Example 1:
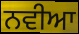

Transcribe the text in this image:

ਨਵੀਆ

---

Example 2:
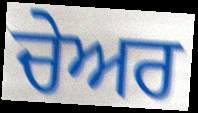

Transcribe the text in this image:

ਚੇਅਰ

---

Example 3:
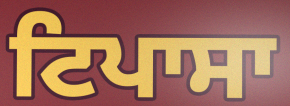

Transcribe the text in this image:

ਟਿਪਾਸਾ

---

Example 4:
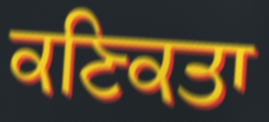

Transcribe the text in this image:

ਕਣਿਕਤਾ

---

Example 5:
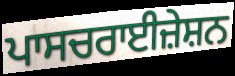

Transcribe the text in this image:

ਪਾਸਚਰਾਈਜ਼ੇਸ਼ਨ